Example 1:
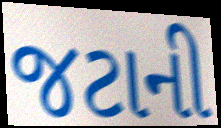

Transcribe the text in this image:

જટાની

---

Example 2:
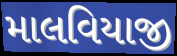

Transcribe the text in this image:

માલવિયાજી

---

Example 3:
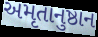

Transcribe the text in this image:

અમૃતાનુષ્ઠાન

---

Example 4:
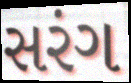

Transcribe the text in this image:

સરંગ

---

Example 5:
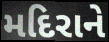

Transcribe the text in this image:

મદિરાને